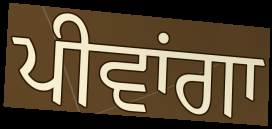
ਪੀਵਾਂਗਾ